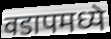
वडापमध्ये